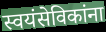
स्वयंसेविकांना